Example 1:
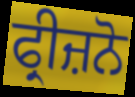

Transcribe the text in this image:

ਫ੍ਰੀਜ਼ਨੋ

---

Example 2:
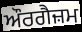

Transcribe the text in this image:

ਔਰਗੈਜ਼ਮ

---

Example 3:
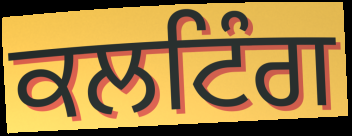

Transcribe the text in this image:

ਕਲਟਿੰਗ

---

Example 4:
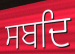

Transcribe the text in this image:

ਸਬਦਿ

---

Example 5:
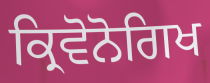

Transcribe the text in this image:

ਕ੍ਰਿਵੋਨੋਗਿਖ